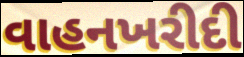
વાહનખરીદી